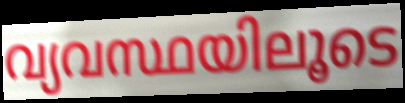
വ്യവസ്ഥയിലൂടെ